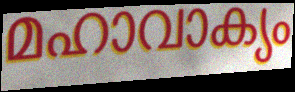
മഹാവാക്യം